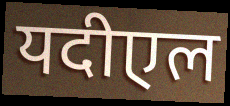
यदीएल